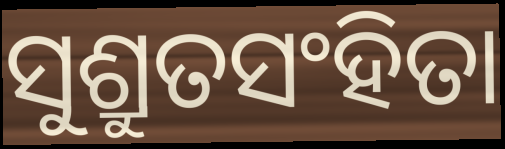
ସୁଶ୍ରୁତସଂହିତା